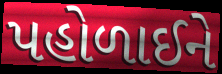
પહોળાઈને